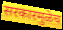
सरकारमुळेच